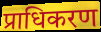
प्राधिकरण